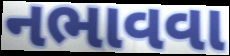
નભાવવા